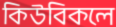
কিউবিকলে